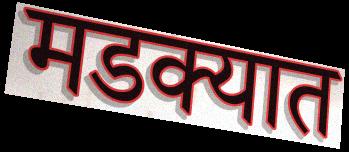
मडक्यात